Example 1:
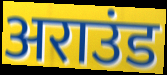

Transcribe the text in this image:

अराउंड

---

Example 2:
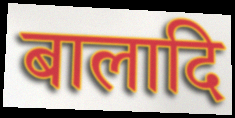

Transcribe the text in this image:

बालादि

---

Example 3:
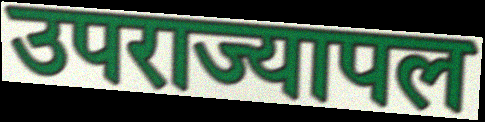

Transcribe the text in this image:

उपराज्यापल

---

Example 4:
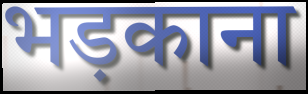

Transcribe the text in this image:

भड़काना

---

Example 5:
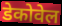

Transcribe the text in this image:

डेकोवेल